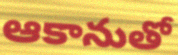
ఆకానుతో